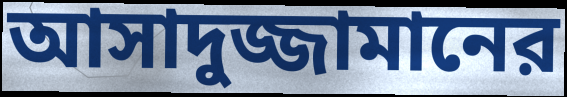
আসাদুজ্জামানের